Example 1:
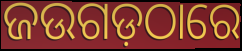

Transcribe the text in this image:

ଜଉଗଡ଼ଠାରେ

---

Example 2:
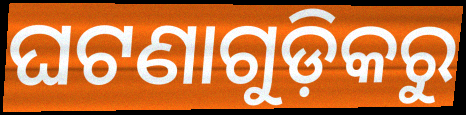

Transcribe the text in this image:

ଘଟଣାଗୁଡ଼ିକରୁ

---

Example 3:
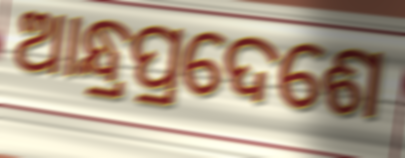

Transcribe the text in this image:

ଆନ୍ଧ୍ରପ୍ରଦେଶେ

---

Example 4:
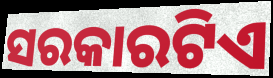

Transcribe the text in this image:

ସରକାରଟିଏ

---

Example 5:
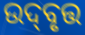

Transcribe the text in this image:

ଉଦ୍‌ବୃତ୍ତ